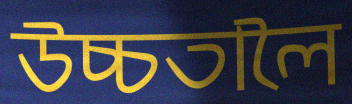
উচ্চতালৈ